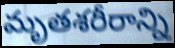
మృతశరీరాన్ని